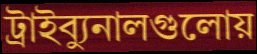
ট্রাইব্যুনালগুলোয়